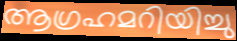
ആഗ്രഹമറിയിച്ചു